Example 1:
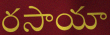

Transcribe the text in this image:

రసాయా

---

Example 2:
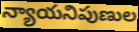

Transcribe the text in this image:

న్యాయనిపుణుల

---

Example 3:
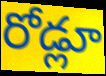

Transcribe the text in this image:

రోడ్లూ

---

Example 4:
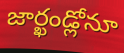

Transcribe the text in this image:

జార్ఖండ్లోనూ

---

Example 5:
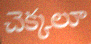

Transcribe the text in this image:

చెక్కలూ